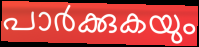
പാർക്കുകയും